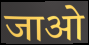
जाओ